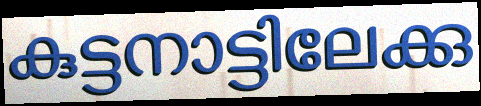
കുട്ടനാട്ടിലേക്കു